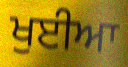
ਖੁਈਆ